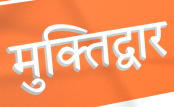
मुक्तिद्वार